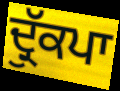
ਦ੍ਰੁੱਕਪਾ